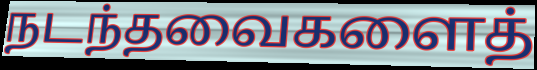
நடந்தவைகளைத்